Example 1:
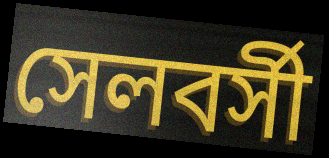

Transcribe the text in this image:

সেলবর্সী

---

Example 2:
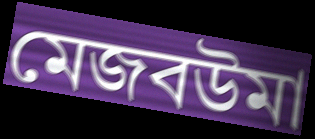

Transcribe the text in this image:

মেজবউমা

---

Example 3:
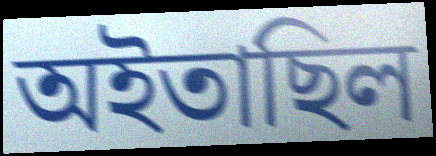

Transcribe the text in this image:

অইতাছিল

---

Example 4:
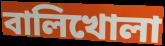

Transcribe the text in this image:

বালিখোলা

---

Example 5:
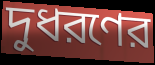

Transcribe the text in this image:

দুধরণের